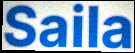
Saila